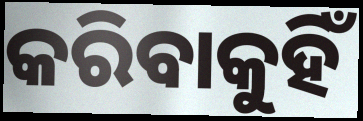
କରିବାକୁହିଁ